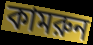
কামরুন